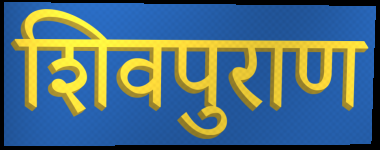
शिवपुराण